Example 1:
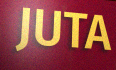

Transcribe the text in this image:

JUTA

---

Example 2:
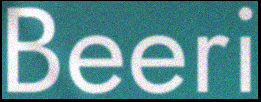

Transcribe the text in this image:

Beeri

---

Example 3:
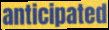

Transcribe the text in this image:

anticipated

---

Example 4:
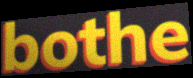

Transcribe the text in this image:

bothe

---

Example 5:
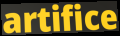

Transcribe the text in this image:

artifice